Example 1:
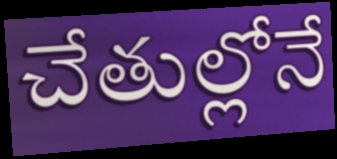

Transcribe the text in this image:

చేతుల్లోనే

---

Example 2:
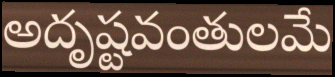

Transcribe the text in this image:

అదృష్టవంతులమే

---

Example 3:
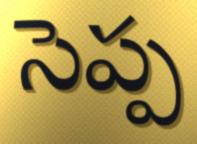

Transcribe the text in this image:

సెప్ప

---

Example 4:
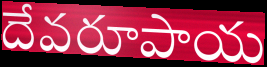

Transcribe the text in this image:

దేవరూపాయ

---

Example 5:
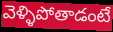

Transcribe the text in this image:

వెళ్ళిపోతాడంటే